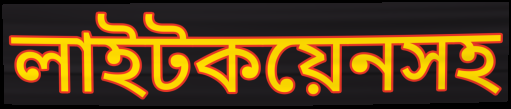
লাইটকয়েনসহ